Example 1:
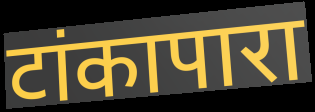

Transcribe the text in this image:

टांकापारा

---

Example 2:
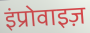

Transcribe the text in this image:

इंप्रोवाइज़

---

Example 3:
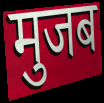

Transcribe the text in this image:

मुजब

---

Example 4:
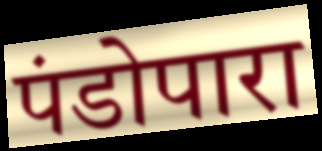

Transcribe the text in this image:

पंडोपारा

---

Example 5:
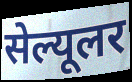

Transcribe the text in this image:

सेल्यूलर